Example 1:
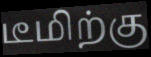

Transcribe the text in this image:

டீமிற்கு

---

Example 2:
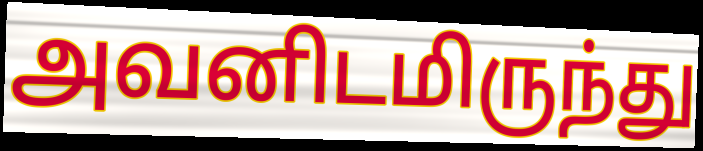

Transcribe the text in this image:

அவனிடமிருந்து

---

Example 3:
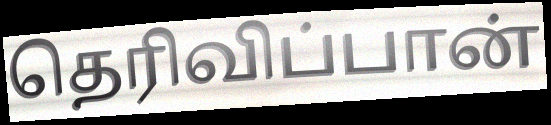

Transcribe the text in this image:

தெரிவிப்பான்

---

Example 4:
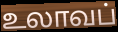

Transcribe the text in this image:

உலாவப்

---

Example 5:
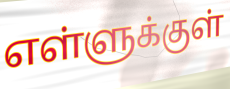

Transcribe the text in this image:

எள்ளுக்குள்